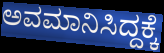
ಅವಮಾನಿಸಿದ್ದಕ್ಕೆ